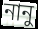
নানু